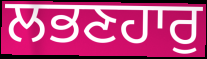
ਲਭਣਹਾਰੁ